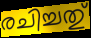
രചിച്ചതു്